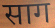
साग